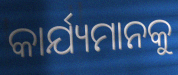
କାର୍ଯ୍ୟମାନକୁ